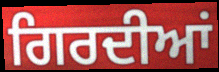
ਗਿਰਦੀਆਂ